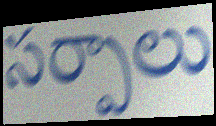
సర్పాలు